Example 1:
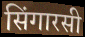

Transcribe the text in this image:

सिंगारसी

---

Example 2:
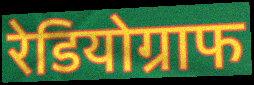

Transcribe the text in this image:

रेडियोग्राफ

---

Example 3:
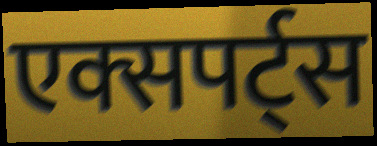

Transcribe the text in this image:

एक्‍सपर्ट्स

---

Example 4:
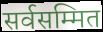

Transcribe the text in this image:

सर्वसम्मित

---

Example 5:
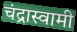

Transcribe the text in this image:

चंद्रास्वामी